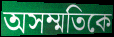
অসম্মতিকে